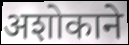
अशोकाने